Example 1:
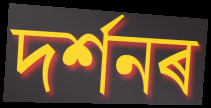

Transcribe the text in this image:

দৰ্শনৰ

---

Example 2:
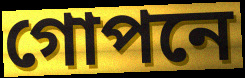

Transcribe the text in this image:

গোপনে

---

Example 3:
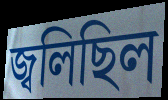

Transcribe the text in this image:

জ্বলিছিল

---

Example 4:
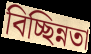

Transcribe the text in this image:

বিচ্ছিন্নতা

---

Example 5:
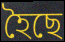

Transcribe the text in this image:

হৈছে